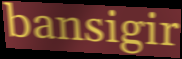
bansigir